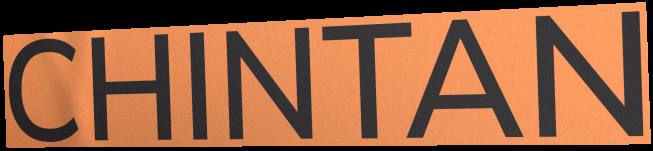
CHINTAN